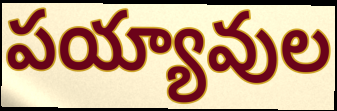
పయ్యావుల